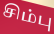
சிம்பு